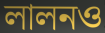
লালনও